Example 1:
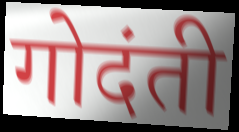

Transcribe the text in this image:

गोदंती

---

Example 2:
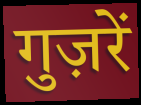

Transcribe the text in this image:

गुज़रें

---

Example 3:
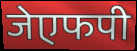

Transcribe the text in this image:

जेएफपी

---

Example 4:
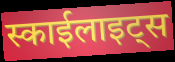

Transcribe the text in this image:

स्काईलाइट्स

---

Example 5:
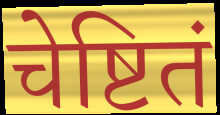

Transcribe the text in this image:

चेष्टितं